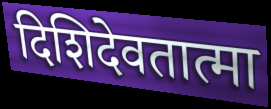
दिशिदेवतात्मा